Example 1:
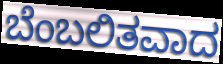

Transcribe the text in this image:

ಬೆಂಬಲಿತವಾದ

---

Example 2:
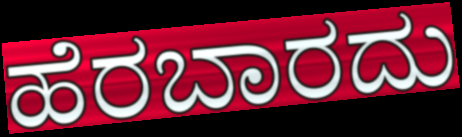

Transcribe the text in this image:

ಹೆರಬಾರದು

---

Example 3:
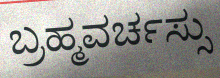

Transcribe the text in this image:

ಬ್ರಹ್ಮವರ್ಚಸ್ಸು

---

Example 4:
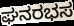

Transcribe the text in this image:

ಘನರಭಸ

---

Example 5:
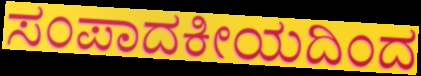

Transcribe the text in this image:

ಸಂಪಾದಕೀಯದಿಂದ